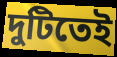
দুটিতেই